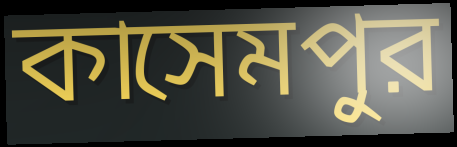
কাসেমপুর